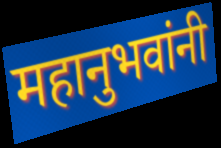
महानुभवांनी